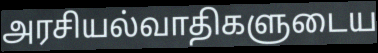
அரசியல்வாதிகளுடைய